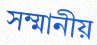
সম্মানীয়